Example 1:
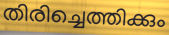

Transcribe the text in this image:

തിരിച്ചെത്തിക്കും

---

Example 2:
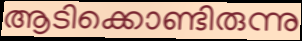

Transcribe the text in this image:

ആടിക്കൊണ്ടിരുന്നു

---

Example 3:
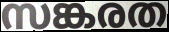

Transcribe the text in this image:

സങ്കരത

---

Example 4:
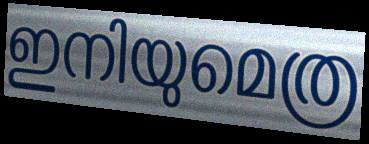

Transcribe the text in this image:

ഇനിയുമെത്ര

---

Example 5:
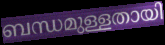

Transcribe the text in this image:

ബന്ധമുള്ളതായി